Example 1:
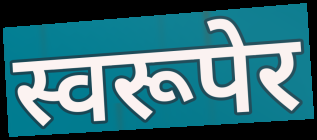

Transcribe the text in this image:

स्वरूपेर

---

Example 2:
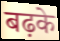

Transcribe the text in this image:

बढ़के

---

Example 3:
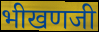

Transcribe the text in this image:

भीखणजी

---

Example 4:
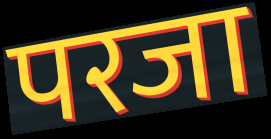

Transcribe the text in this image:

परजा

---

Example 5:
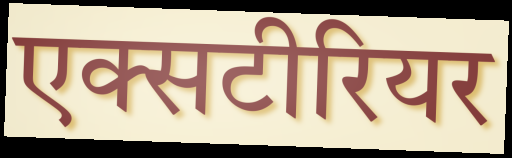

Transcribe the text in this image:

एक्‍सटीरियर